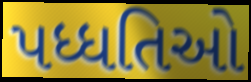
પધ્ધતિઓ